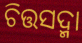
ଚିତ୍ତସଦ୍ମା